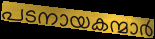
പടനായകന്മാർ